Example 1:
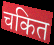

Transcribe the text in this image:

चकित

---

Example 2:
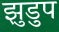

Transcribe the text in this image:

झुडुप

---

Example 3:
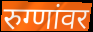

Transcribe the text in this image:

रुग्णांवर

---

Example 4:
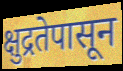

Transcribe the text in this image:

क्षुद्रतेपासून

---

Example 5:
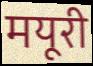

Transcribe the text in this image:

मयूरी